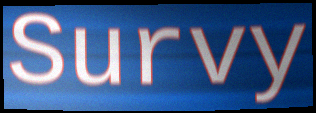
Survy